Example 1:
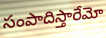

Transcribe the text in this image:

సంపాదిస్తారేమో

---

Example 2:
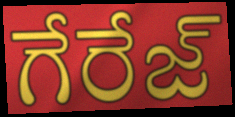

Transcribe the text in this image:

గేరేజ్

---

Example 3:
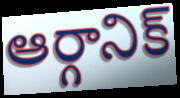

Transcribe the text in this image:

ఆర్గానిక్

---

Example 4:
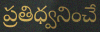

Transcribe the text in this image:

ప్రతిధ్వనించే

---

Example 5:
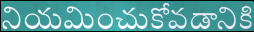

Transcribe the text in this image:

నియమించుకోవడానికి